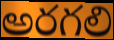
అరగలి